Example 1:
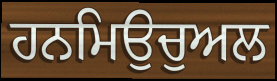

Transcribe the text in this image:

ਹਨਮਿਉਚੁਅਲ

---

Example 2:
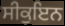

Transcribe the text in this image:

ਸੀਕੁਇਨ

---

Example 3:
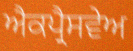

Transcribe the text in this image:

ਐਕਪ੍ਰੈਸਵੇਅ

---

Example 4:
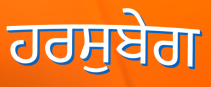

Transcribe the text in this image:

ਹਰਸੁਬੇਗ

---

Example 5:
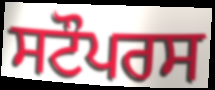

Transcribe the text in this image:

ਸਟੌਪਰਸ